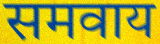
समवाय